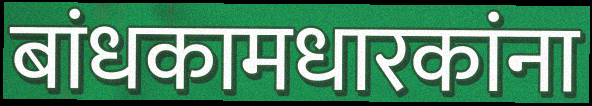
बांधकामधारकांना